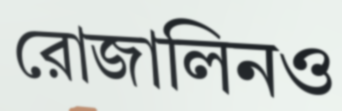
রোজালিনও